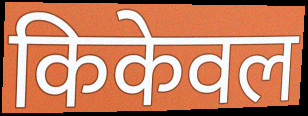
किकेवल